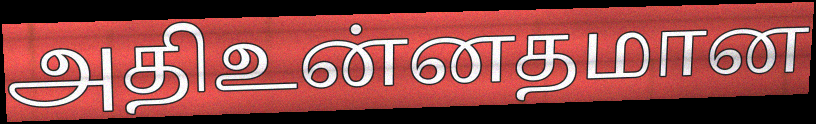
அதிஉன்னதமான